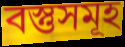
বস্তুসমূহ